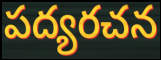
పద్యరచన